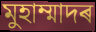
মুহাম্মাদৰ